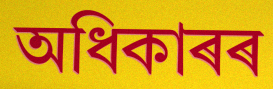
অধিকাৰৰ